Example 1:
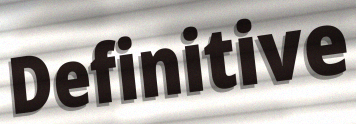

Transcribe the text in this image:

Definitive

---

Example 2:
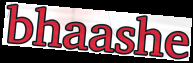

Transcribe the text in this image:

bhaashe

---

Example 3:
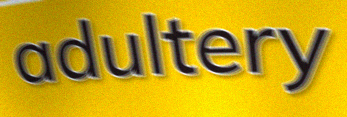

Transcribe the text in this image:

adultery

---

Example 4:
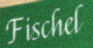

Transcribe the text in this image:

Fischel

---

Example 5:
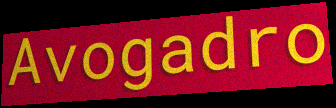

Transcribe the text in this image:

Avogadro